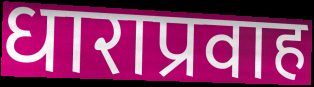
धाराप्रवाह